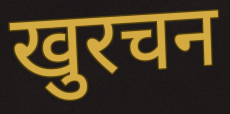
खुरचन